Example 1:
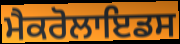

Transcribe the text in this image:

ਮੈਕਰੋਲਾਇਡਸ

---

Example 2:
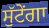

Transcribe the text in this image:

ਸੁੱਟੇਂਗਾ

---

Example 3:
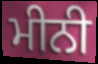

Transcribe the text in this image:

ਮੀਨੀ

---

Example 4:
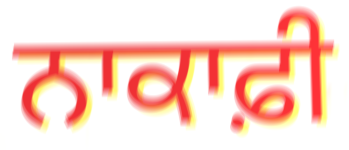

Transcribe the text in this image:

ਨਾਕਾਫ਼ੀ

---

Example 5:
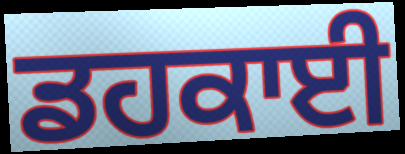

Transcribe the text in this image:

ਡਹਕਾਈ